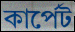
কাৰ্পেট